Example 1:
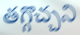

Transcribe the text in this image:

తగ్గొచ్చని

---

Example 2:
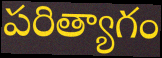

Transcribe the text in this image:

పరిత్యాగం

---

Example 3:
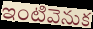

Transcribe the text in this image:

ఇంటివెనుక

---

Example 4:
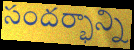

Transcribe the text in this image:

సందర్భాన్ని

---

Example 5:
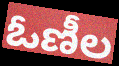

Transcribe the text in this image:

ఓణీల